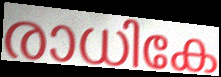
രാധികേ